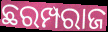
ଛରମ୍ପରାଜ